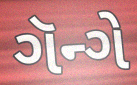
ગૅન્ગે